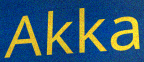
Akka